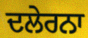
ਦਲੇਰਨਾ